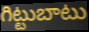
గిట్టుబాటు